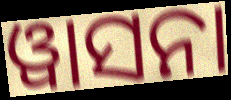
ୱାସନା